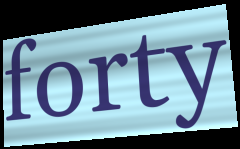
forty